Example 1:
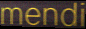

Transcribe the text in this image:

mendi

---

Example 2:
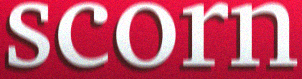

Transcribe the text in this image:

scorn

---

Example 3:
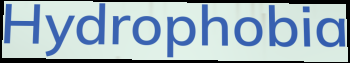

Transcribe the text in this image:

Hydrophobia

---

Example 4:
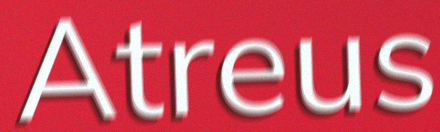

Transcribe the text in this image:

Atreus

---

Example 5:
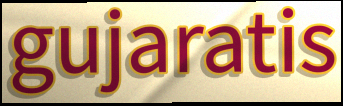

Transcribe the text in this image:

gujaratis